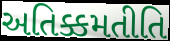
અતિક્કમતીતિ